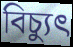
বিচ্যুৎ